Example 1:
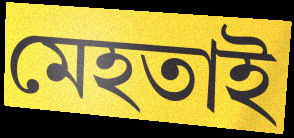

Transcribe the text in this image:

মেহতাই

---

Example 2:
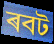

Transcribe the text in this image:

ৰবট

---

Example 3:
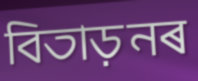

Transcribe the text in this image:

বিতাড়নৰ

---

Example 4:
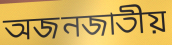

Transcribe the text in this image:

অজনজাতীয়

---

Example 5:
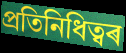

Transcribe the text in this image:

প্ৰতিনিধিত্বৰ